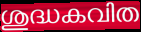
ശുദ്ധകവിത